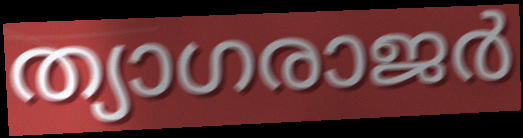
ത്യാഗരാജർ